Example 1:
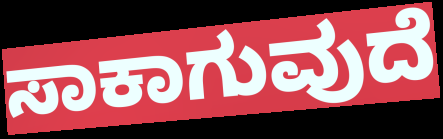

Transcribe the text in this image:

ಸಾಕಾಗುವುದೆ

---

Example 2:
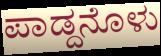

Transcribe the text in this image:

ಪಾಡ್ದನೊಳು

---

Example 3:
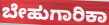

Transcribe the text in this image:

ಬೇಹುಗಾರಿಕಾ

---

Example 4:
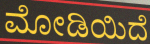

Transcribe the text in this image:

ಮೋಡಿಯಿದೆ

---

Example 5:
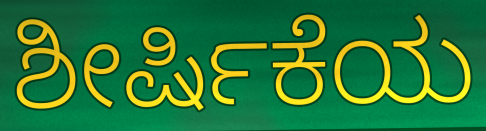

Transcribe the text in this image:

ಶೀರ್ಷಿಕೆಯ